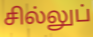
சில்லுப்